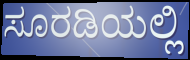
ಸೂರಡಿಯಲ್ಲಿ